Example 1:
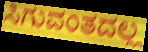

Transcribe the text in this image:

ಸಿಗುವಂತದಲ್ಲ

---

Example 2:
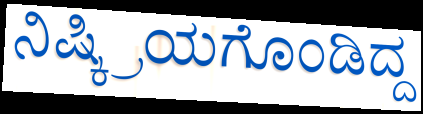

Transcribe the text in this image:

ನಿಷ್ಕ್ರಿಯಗೊಂಡಿದ್ದ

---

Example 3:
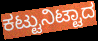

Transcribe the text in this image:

ಕಟ್ಟುನಿಟ್ಟಾದ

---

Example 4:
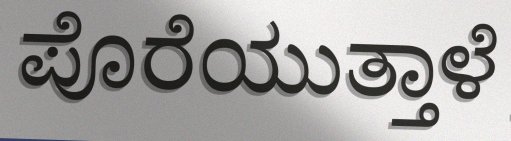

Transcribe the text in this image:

ಪೊರೆಯುತ್ತಾಳೆ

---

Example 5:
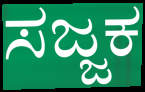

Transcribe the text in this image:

ಸಜ್ಜಕ